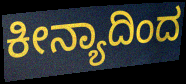
ಕೀನ್ಯಾದಿಂದ